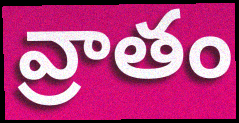
వ్రాతం